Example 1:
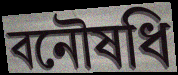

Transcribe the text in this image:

বনৌষধি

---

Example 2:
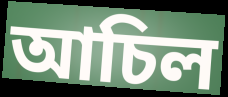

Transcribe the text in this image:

আচিল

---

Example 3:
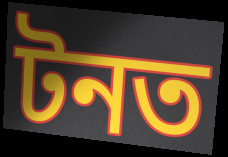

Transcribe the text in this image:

টনত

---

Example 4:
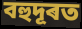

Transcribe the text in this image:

বহুদূৰত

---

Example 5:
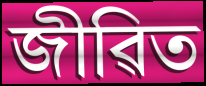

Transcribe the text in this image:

জীৱিত